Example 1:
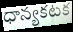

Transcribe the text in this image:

ధాన్యకటక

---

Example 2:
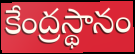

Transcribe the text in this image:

కేంద్రస్థానం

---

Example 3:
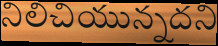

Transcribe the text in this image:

నిలిచియున్నదని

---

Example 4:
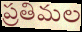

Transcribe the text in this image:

ప్రతిమల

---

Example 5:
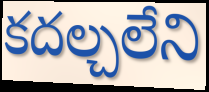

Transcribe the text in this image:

కదల్చలేని